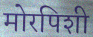
मोरपिशी